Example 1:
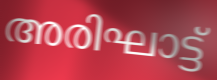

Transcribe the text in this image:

അരിഘാട്ട്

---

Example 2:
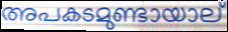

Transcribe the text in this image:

അപകടമുണ്ടായാല്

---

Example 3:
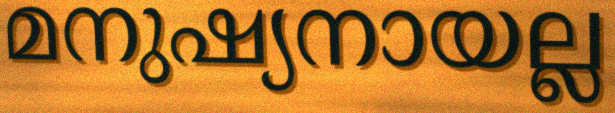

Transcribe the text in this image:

മനുഷ്യനായല്ല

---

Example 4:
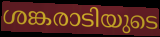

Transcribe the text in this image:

ശങ്കരാടിയുടെ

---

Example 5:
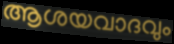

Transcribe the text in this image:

ആശയവാദവും